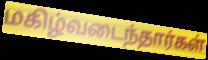
மகிழ்வடைந்தார்கள்